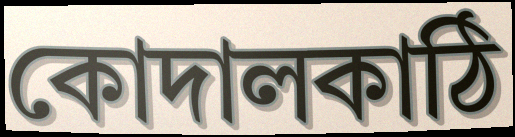
কোদালকাঠি